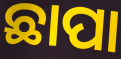
ଛାପା